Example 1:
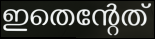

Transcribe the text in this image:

ഇതെന്റേത്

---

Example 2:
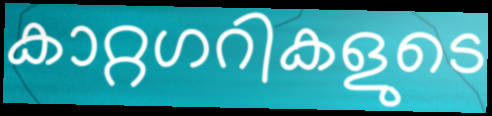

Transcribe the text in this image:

കാറ്റഗറികളുടെ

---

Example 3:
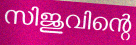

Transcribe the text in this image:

സിജുവിന്റെ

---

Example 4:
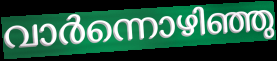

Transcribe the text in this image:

വാർന്നൊഴിഞ്ഞു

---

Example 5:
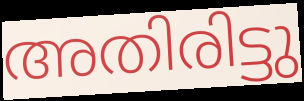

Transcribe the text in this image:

അതിരിട്ടു